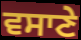
ਵਸਾਣੇ